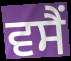
ਵਸੈਂ